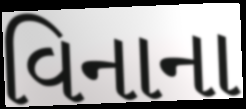
વિનાના